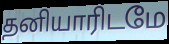
தனியாரிடமே